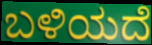
ಬಳಿಯದೆ